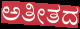
ಅತೀತದ